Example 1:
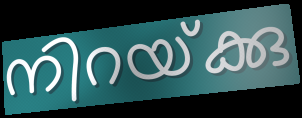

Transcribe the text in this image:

നിറയ്‌ക്കു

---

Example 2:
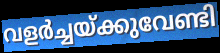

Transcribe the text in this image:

വളർച്ചയ്ക്കുവേണ്ടി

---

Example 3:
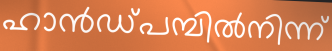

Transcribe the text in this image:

ഹാൻഡ്പമ്പിൽനിന്ന്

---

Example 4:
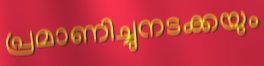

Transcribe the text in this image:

പ്രമാണിച്ചുനടക്കയും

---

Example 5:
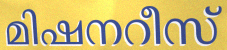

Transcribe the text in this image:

മിഷനറീസ്